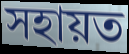
সহায়ত